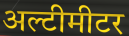
अल्टीमीटर